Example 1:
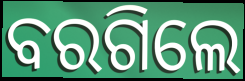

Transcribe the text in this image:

ବରଗିଲେ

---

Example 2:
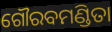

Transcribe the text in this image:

ଗୌରବମଣ୍ଡିତା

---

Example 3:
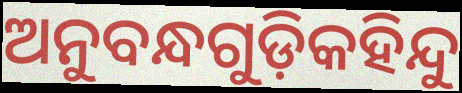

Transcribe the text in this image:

ଅନୁବନ୍ଧଗୁଡ଼ିକହିନ୍ଦୁ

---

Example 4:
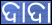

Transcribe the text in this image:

ଦାଦା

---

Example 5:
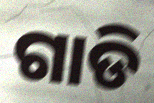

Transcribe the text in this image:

ଗାଡି